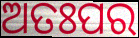
ଅତଃପର